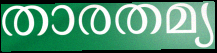
താരതമ്യ